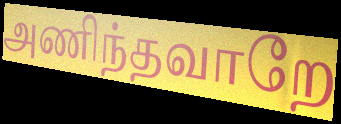
அணிந்தவாறே